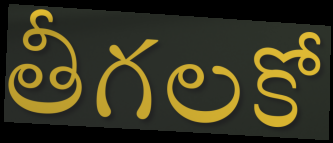
తీగలకో